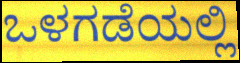
ಒಳಗಡೆಯಲ್ಲಿ